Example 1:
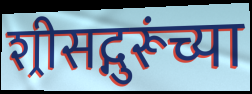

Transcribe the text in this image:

श्रीसद्गुरूंच्या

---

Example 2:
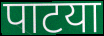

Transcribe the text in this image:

पाटया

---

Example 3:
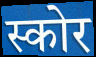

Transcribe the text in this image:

स्कोर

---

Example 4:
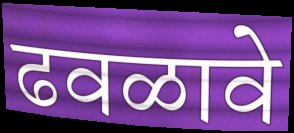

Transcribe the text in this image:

ढवळावे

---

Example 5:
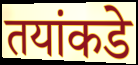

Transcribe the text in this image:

तयांकडे